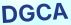
DGCA